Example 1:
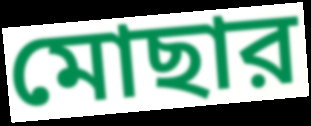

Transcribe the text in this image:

মোছার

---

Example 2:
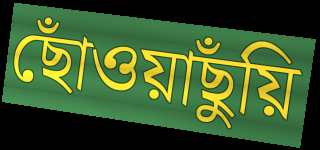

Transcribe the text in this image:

ছোঁওয়াছুঁয়ি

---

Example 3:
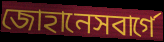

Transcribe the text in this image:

জোহানেসবার্গে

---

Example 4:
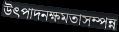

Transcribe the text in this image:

উৎপাদনক্ষমতাসম্পন্ন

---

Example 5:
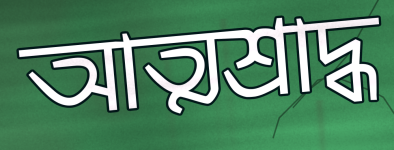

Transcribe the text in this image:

আত্মশ্রাদ্ধ